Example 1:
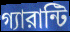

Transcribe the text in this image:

গ্যারান্টি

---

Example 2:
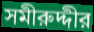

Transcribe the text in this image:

সমীরুদ্দীর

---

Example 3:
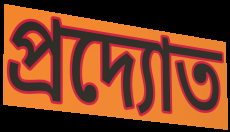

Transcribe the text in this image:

প্রদ্যোত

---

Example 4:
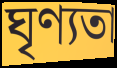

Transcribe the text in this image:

ঘৃণ্যতা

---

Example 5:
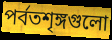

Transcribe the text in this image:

পর্বতশৃঙ্গগুলো